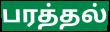
பரத்தல்